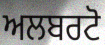
ਅਲਬਰਟੋ